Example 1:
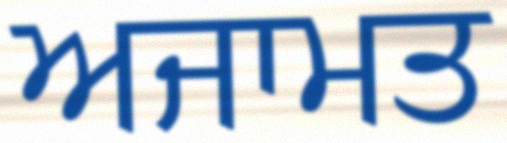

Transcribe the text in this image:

ਅਜਾਮਤ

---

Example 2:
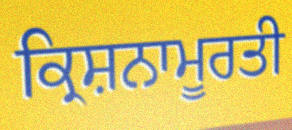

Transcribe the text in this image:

ਕ੍ਰਿਸ਼ਨਾਮੂਰਤੀ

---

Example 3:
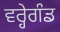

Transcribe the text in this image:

ਵਰ੍ਹੇਗੰਡ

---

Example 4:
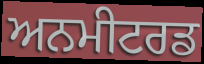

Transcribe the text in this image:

ਅਨਮੀਟਰਡ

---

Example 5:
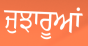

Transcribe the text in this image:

ਜੁਝਾਰੂਆਂ